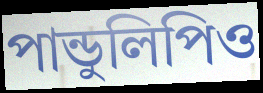
পান্ডুলিপিও